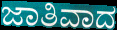
ಜಾತಿವಾದ